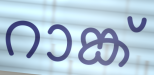
റാങ്ക്